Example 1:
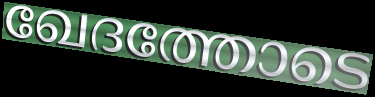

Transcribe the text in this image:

ഖേദത്തോടെ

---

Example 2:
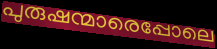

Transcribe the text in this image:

പുരുഷന്മാരെപ്പോലെ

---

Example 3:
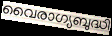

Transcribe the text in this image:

വൈരാഗ്യബുദ്ധി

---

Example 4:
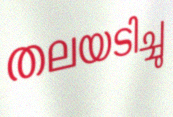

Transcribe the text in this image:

തലയടിച്ചു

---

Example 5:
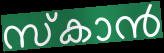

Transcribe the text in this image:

സ്കാൻ